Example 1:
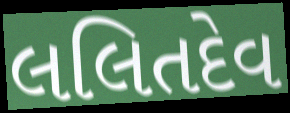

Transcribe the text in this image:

લલિતદેવ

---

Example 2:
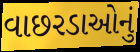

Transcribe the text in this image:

વાછરડાઓનું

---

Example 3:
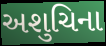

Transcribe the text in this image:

અશુચિના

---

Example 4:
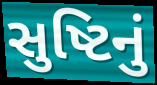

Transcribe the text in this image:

સુષ્ટિનું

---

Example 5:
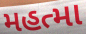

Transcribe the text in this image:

મહત્મા